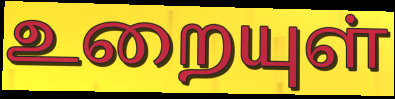
உறையுள்